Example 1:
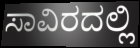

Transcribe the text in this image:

ಸಾವಿರದಲ್ಲಿ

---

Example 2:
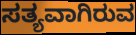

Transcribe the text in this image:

ಸತ್ಯವಾಗಿರುವ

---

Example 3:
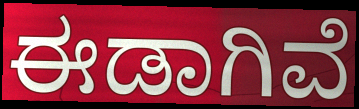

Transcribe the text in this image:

ಈಡಾಗಿವೆ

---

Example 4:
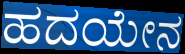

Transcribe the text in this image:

ಹದಯೇನ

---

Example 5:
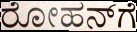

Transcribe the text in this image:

ರೋಹನ್‌ಗೆ